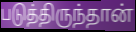
படுத்திருந்தான்